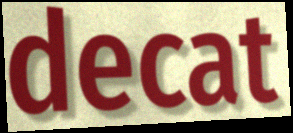
decat